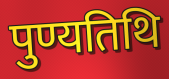
पुण्यतिथि